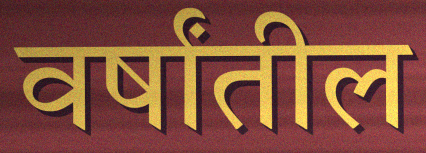
वर्षांतील